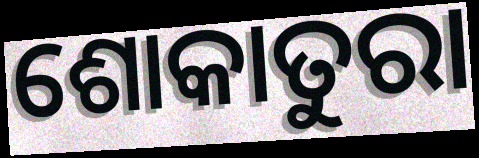
ଶୋକାତୁରା